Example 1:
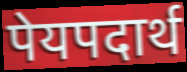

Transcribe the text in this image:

पेयपदार्थ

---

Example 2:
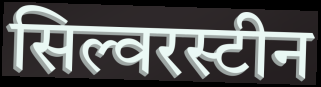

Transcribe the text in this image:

सिल्वरस्टीन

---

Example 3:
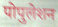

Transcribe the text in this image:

पोपुलेशन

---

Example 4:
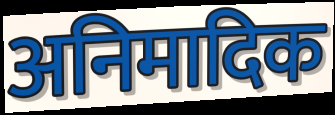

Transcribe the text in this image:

अनिमादिक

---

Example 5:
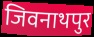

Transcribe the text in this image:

जिवनाथपुर